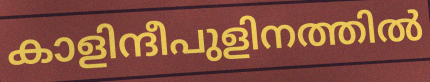
കാളിന്ദീപുളിനത്തിൽ